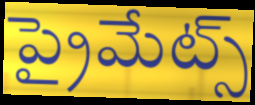
ప్రైమేట్స్